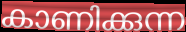
കാണിക്കുന്ന